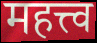
महत्त्व